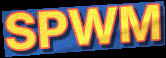
SPWM